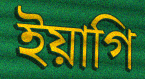
ইয়াগি